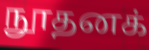
நூதனக்